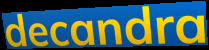
decandra